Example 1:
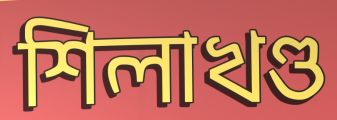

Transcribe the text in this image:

শিলাখণ্ড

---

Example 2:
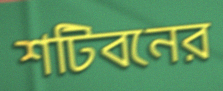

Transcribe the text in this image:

শটিবনের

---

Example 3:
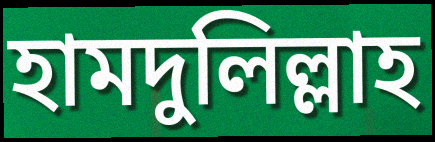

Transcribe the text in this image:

হামদুলিল্লাহ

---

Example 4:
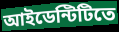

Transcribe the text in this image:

আইডেন্টিটিতে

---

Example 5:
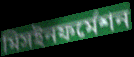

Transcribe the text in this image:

মিসইনফর্মেশন